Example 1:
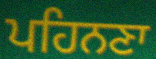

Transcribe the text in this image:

ਪਹਿਨਣਾ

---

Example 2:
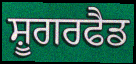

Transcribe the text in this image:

ਸ਼ੂਗਰਫੈਡ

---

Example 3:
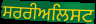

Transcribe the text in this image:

ਸਰਰੀਅਲਿਸਟ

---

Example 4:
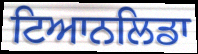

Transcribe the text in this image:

ਟਿਆਨਲਿਡਾ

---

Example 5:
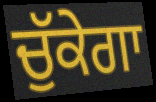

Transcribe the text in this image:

ਚੁੱਕੇਗਾ